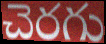
చెరగు